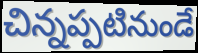
చిన్నప్పటినుండే